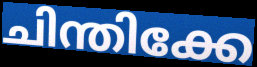
ചിന്തിക്കേ